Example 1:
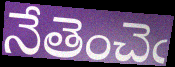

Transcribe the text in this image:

నేతెంచెఁ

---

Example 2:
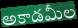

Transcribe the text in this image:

అకాడమీల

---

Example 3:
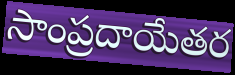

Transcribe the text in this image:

సాంప్రదాయేతర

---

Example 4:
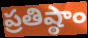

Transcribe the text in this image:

ప్రతిష్ఠాం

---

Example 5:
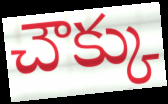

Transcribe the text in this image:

చౌక్కు